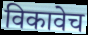
विकावेच